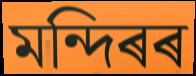
মন্দিৰৰ